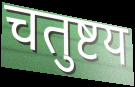
चतुष्टय